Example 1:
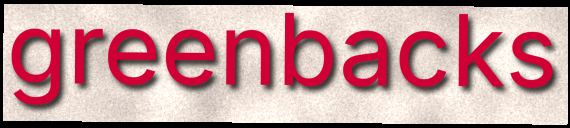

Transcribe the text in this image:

greenbacks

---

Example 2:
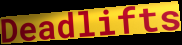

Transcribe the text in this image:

Deadlifts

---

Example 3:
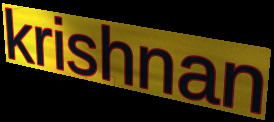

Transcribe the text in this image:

krishnan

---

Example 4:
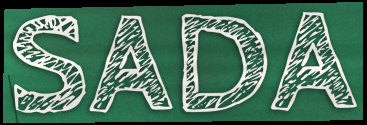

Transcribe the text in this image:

SADA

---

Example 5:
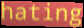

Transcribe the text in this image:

hating